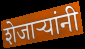
शेजाऱ्यांनी